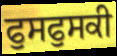
ਫੁਸਫੁਸਕੀ